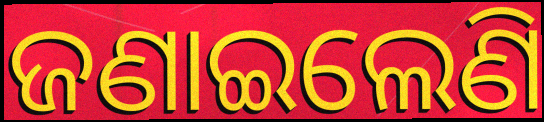
ଜଣାଇଲେଣି